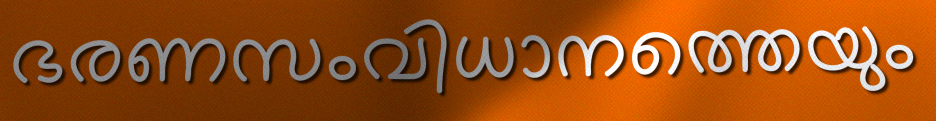
ഭരണസംവിധാനത്തെയും